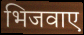
भिजवाए